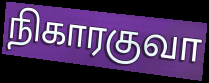
நிகாரகுவா